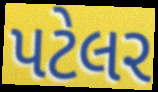
પટેલર